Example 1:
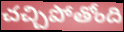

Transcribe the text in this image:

చచ్చిపోతోంది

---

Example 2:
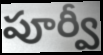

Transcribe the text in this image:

పూర్వీ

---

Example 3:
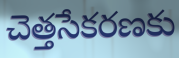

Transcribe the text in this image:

చెత్తసేకరణకు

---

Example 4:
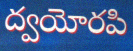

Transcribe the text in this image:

ద్వయోరపి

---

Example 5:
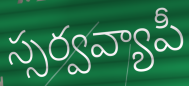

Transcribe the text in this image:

స్సర్వవ్యాపీ